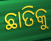
ଛାତିକୁ